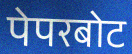
पेपरबोट